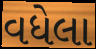
વધેલા